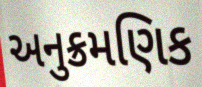
અનુક્રમણિક